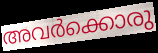
അവർക്കൊരു